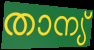
താന്യ്